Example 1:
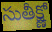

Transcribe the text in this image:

సుతీక్ష్ణో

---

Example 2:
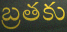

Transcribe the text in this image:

బ్రతకు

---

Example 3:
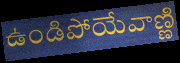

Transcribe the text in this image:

ఉండిపోయేవాణ్ణి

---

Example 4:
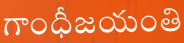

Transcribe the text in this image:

గాంధీజయంతి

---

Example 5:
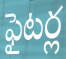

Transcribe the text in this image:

ఫైటర్ల